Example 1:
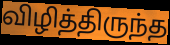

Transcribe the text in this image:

விழித்திருந்த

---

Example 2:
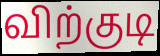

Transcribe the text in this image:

விற்குடி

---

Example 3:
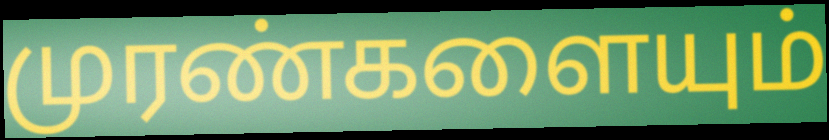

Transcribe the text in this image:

முரண்களையும்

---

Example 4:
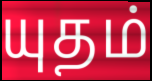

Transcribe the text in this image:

யுதம்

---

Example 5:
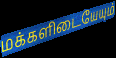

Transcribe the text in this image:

மக்களிடையேயும்